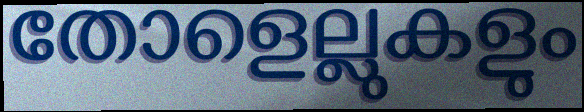
തോളെല്ലുകളും